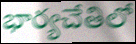
భార్యచేతిలో